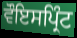
ਵੌਇਸਪ੍ਰਿੰਟ